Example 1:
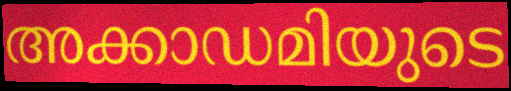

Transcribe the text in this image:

അക്കാഡമിയുടെ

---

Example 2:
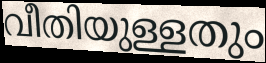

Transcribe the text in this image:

വീതിയുള്ളതും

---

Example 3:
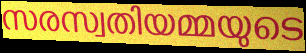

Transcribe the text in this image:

സരസ്വതിയമ്മയുടെ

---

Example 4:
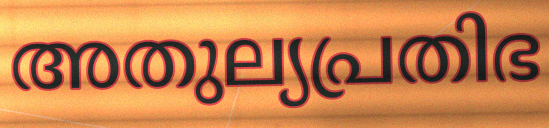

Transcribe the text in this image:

അതുല്യപ്രതിഭ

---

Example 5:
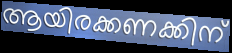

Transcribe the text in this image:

ആയിരക്കണക്കിന്